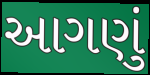
આગણું